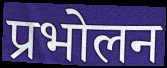
प्रभोलन